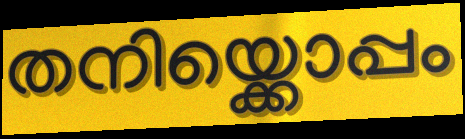
തനിയ്ക്കൊപ്പം